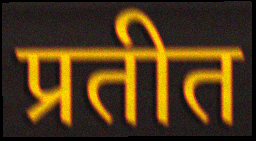
प्रतीत